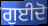
ਗੁਈਦੋ